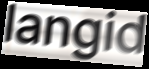
langid